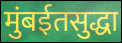
मुंबईतसुद्धा